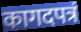
कागदपत्रं